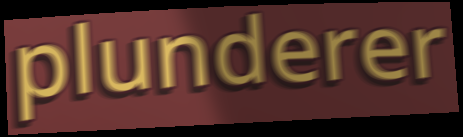
plunderer